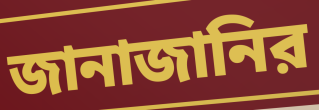
জানাজানির